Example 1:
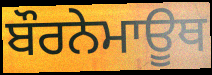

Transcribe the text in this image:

ਬੌਰਨੇਮਾਊਥ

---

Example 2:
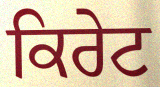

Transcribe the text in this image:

ਕਿਰੇਟ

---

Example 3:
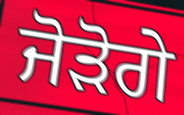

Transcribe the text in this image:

ਜੋੜੋਗੇ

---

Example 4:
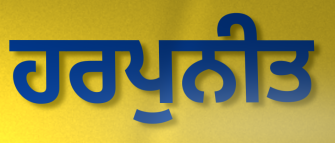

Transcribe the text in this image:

ਹਰਪੁਨੀਤ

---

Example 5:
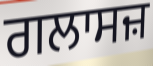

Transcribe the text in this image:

ਗਲਾਸਜ਼